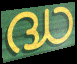
ദ്ധ